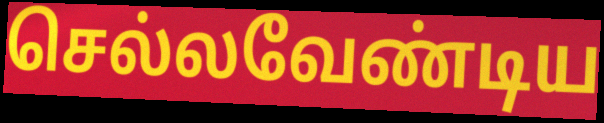
செல்லவேண்டிய